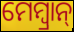
ମେମ୍ବ୍ରାନ୍